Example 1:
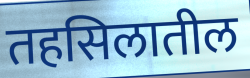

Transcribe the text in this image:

तहसिलातील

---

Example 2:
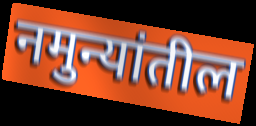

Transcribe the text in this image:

नमुन्यांतील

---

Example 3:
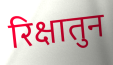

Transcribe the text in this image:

रिक्षातुन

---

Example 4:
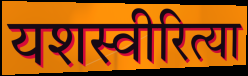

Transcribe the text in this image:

यशस्वीरित्या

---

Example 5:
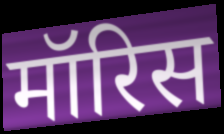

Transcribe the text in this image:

मॉरिस